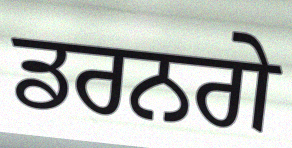
ਡਰਨਗੇ